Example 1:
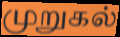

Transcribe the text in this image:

முறுகல்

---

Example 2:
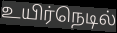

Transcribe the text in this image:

உயிர்நெடில்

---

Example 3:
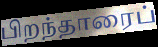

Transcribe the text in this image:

பிறந்தாரைப்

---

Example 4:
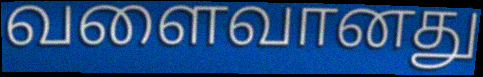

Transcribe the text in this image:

வளைவானது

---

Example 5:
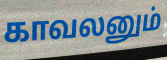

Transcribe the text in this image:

காவலனும்